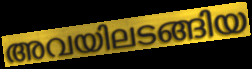
അവയിലടങ്ങിയ